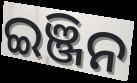
ଇଞ୍ଜିନ